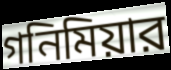
গনিমিয়ার